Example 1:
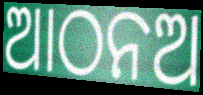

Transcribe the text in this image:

ଆଠନଅ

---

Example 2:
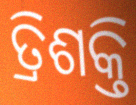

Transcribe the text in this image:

ତ୍ରିଶକ୍ତି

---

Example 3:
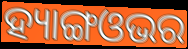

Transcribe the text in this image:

ହ୍ୟାଙ୍ଗଓଭର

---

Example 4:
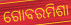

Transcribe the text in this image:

ଗୋବରମିଶା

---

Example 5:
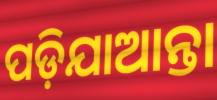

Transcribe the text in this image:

ପଡ଼ିଯାଆନ୍ତା